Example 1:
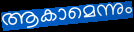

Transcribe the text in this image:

ആകാമെന്നും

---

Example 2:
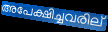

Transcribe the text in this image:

അപേക്ഷിച്ചവരില്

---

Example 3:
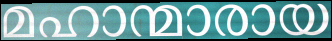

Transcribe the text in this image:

മഹാന്മാരായ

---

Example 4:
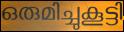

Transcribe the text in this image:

ഒരുമിച്ചുകൂട്ടി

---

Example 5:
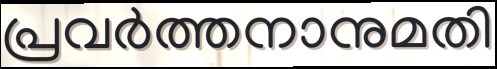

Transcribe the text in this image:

പ്രവർത്തനാനുമതി